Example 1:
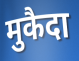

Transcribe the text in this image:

मुकैदा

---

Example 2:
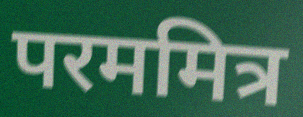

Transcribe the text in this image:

परममित्र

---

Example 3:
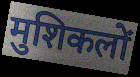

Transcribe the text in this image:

मुशिकलों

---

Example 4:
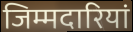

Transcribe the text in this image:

जिम्मदारियां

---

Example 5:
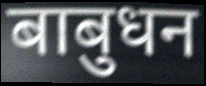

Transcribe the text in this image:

बाबुधन